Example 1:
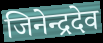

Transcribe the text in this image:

जिनेन्द्रदेव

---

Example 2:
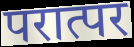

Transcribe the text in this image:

परात्पर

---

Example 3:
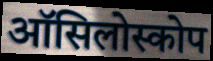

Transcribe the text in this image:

ऑसिलोस्कोप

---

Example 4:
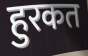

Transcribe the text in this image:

हुरकत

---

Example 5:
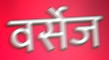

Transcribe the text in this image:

वर्सेज